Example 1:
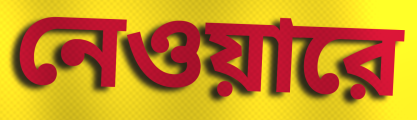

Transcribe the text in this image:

নেওয়ারে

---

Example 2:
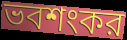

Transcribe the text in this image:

ভবশংকর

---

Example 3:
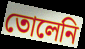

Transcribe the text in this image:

তোলেনি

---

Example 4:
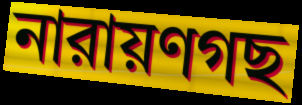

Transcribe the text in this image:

নারায়ণগছ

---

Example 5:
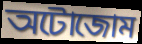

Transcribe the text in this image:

অটোজোম